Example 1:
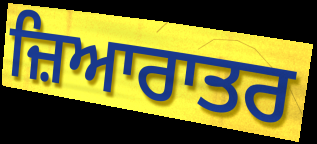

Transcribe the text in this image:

ਜ਼ਿਆਰਾਤਰ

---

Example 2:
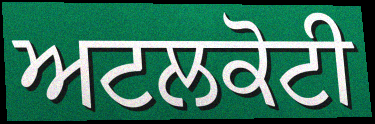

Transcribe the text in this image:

ਅਟਲਕੋਟੀ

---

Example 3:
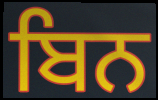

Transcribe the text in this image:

ਬਿਨ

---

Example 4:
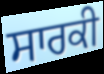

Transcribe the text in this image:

ਸਾਰਕੀ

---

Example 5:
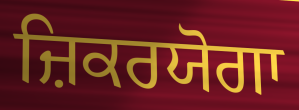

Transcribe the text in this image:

ਜ਼ਿਕਰਯੋਗਾ